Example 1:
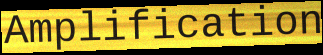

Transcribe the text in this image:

Amplification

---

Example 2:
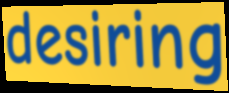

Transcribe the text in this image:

desiring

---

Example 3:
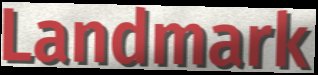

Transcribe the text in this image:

Landmark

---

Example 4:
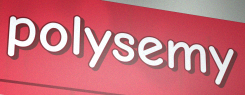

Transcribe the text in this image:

polysemy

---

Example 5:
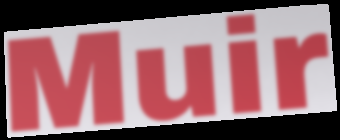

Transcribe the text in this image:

Muir